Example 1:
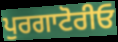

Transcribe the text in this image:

ਪੁਰਗਾਟੋਰੀਓ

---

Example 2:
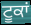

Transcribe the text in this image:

ਟੂਕਾਂ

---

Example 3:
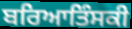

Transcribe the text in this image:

ਬਰਿਆਤਿੰਸਕੀ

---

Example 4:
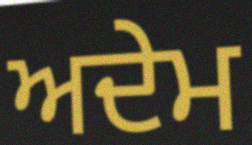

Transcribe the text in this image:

ਅਦੇਮ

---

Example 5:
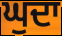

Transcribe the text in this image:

ਘੁਦਾ